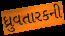
ધ્રુવતારકની